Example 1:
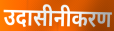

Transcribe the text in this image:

उदासीनीकरण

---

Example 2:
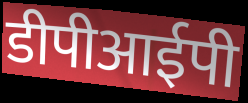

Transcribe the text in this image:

डीपीआईपी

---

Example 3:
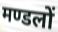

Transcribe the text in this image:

मण्डलों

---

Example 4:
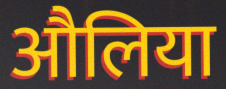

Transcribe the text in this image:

औलिया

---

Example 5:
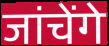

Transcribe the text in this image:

जांचेंगे